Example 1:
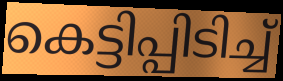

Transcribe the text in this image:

കെട്ടിപ്പിടിച്ച്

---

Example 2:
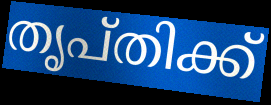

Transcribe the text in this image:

തൃപ്തിക്ക്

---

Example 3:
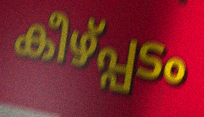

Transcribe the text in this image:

കീഴ്പ്പടം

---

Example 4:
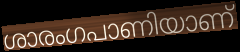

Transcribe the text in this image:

ശാരംഗപാണിയാണ്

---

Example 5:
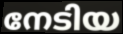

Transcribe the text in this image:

നേടിയ